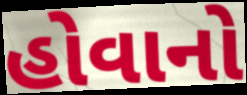
હોવાનો